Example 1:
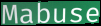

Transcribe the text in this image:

Mabuse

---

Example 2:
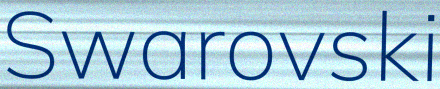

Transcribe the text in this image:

Swarovski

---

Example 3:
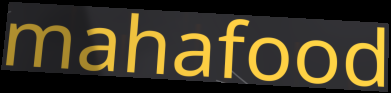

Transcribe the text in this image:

mahafood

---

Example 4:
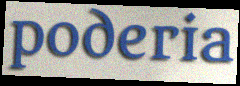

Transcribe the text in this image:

poderia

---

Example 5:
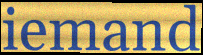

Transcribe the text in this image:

iemand